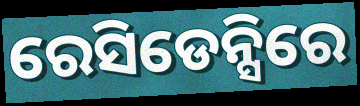
ରେସିଡେନ୍ସିରେ